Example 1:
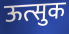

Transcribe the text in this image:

ऊत्सुक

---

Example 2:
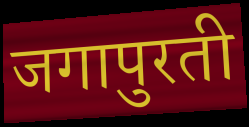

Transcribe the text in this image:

जगापुरती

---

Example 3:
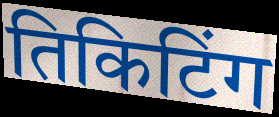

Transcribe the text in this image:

तिकिटिंग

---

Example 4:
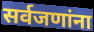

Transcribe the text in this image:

सर्वजणांना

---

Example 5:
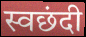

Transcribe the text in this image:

स्वछंदी